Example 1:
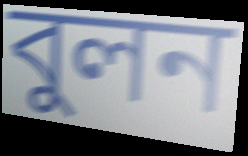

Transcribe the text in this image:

বুলন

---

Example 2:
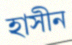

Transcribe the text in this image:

হাসীন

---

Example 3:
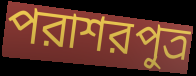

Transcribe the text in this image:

পরাশরপুত্র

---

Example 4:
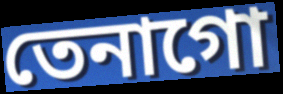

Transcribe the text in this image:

তেনাগো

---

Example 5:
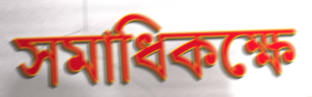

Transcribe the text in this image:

সমাধিকক্ষে